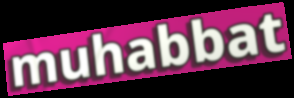
muhabbat